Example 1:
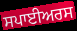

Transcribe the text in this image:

ਸਪਾਈਅਰਸ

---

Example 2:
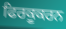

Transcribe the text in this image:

ਫਿਰਕੂਕਰਨ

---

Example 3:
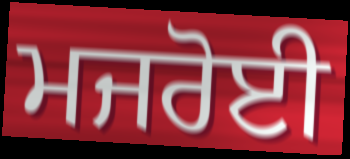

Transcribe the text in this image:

ਮਜਰੋਈ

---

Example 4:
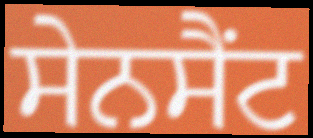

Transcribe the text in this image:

ਸੇਨਸੈਂਟ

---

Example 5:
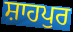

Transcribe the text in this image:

ਸ਼ਾਹਪੁਰ